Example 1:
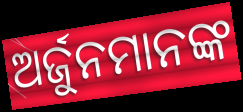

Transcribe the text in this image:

ଅର୍ଜୁନମାନଙ୍କ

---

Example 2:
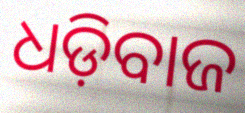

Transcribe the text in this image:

ଧଡ଼ିବାଜ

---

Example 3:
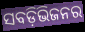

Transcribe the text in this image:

ସବଡ଼ିଭିଜନର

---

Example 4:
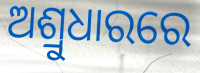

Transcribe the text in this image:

ଅଶ୍ରୁଧାରରେ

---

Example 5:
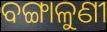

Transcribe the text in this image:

ବଙ୍ଗାଳୁଣୀ